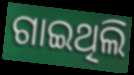
ଗାଇଥିଲି